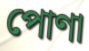
পোণা